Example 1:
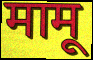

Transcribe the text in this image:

मामू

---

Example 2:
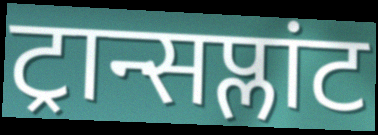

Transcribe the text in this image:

ट्रान्सप्लांट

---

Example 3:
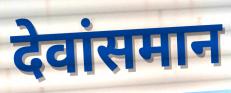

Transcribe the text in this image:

देवांसमान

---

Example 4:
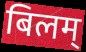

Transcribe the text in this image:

बिलम्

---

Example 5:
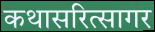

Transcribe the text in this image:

कथासरित्सागर